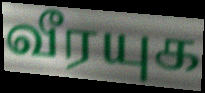
வீரயுக